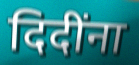
दिदींना